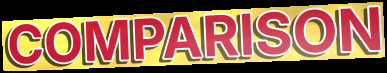
COMPARISON